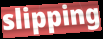
slipping